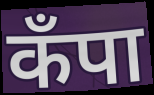
कँपा